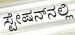
ಸ್ಟೇಷನ್‌ನಲ್ಲಿ